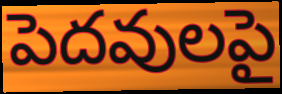
పెదవులపై